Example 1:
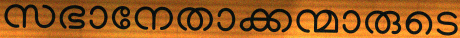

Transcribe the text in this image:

സഭാനേതാക്കന്മാരുടെ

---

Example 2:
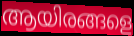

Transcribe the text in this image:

ആയിരങ്ങളെ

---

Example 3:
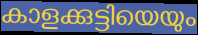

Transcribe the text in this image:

കാളക്കുട്ടിയെയും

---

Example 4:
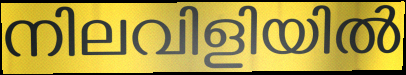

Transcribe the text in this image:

നിലവിളിയിൽ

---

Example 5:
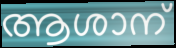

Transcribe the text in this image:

ആശാന്